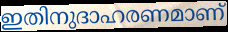
ഇതിനുദാഹരണമാണ്